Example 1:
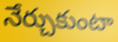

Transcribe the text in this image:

నేర్చుకుంటా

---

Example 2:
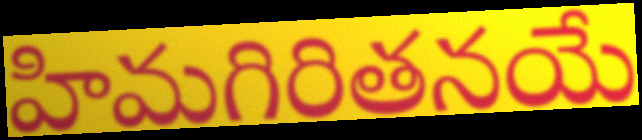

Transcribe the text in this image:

హిమగిరితనయే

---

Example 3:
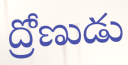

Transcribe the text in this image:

ద్రోణుడు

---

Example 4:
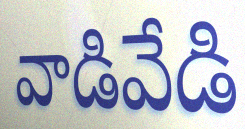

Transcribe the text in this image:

వాడివేడి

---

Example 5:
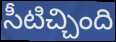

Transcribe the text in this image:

సీటిచ్చింది